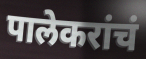
पालेकरांचं